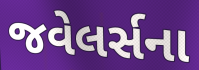
જવેલર્સના